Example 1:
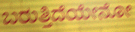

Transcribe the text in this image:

ಬರುತ್ತಿದೆಯೇನೋ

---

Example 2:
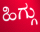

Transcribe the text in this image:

ಹಿಗ್ಗು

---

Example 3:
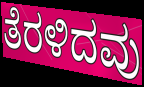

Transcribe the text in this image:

ತೆರಳಿದವು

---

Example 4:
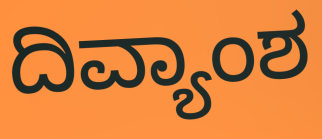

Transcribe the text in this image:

ದಿವ್ಯಾಂಶ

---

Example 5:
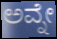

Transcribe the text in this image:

ಅವ್ನೇ